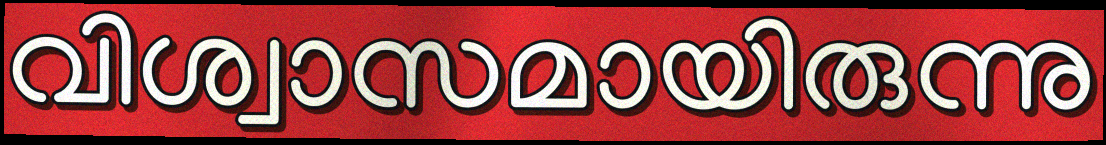
വിശ്വാസമായിരുന്നു